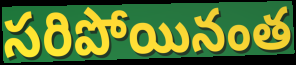
సరిపోయినంత